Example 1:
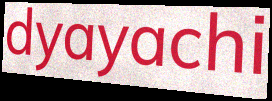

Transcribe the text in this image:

dyayachi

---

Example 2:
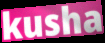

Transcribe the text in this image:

kusha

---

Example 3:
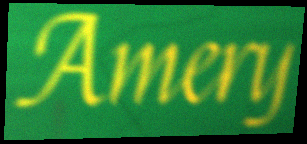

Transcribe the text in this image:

Amery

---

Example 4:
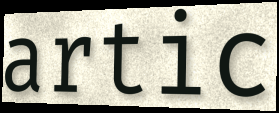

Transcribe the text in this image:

artic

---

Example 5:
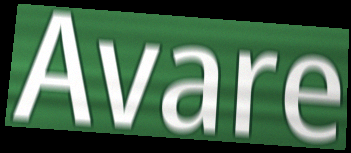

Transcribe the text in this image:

Avare